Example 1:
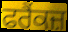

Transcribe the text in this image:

ਫਰੈਂਕਜ਼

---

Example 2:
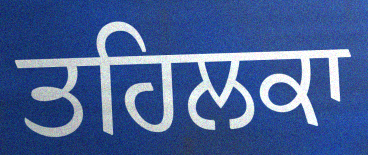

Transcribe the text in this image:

ਤਹਿਲਕਾ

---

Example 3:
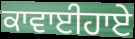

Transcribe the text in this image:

ਕਾਵਾਈਹਾਏ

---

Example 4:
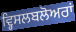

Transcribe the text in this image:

ਵ੍ਹਿਸਲਬਲੋਅਰਾਂ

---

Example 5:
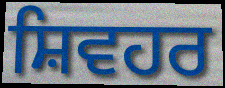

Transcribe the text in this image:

ਸ਼ਿਵਹਰ